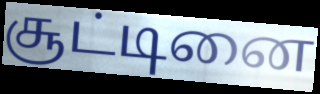
சூட்டினை